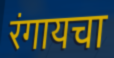
रंगायचा